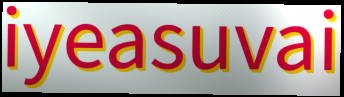
iyeasuvai